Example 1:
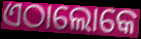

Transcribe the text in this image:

ଏଠାଲୋକେ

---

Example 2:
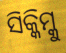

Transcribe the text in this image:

ସିକ୍କିମ୍କୁ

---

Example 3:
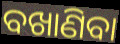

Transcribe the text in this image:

ବଖାଣିବା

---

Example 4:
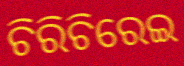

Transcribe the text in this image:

ଚିରିଚିରେଇ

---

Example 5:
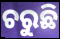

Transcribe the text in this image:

ଚରୁଛି